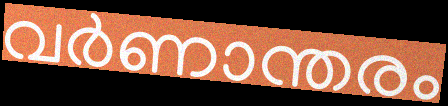
വർണാന്തരം